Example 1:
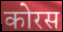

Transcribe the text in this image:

कोरस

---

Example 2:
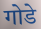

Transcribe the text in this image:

गोडे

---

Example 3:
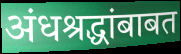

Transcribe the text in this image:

अंधश्रद्धांबाबत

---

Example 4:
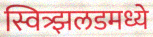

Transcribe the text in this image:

स्वित्र्झलडमध्ये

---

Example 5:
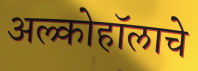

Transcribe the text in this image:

अल्कोहॉलाचे